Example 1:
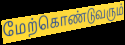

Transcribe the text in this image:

மேற்கொண்டுவரும்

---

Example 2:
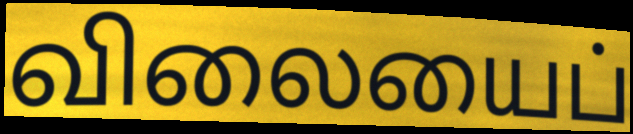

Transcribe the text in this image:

விலையைப்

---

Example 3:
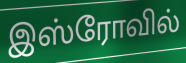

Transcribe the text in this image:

இஸ்ரோவில்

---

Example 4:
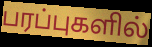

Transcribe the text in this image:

பரப்புகளில்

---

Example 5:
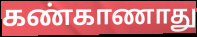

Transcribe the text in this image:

கண்காணாது